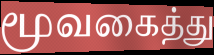
மூவகைத்து